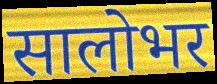
सालोभर